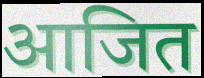
आजित